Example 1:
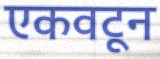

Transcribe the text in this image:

एकवटून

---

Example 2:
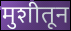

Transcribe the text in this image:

मुशीतून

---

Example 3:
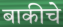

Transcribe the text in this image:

बाकीचे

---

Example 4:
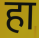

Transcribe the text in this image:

हा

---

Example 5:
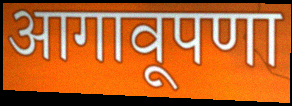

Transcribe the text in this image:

आगावूपणा